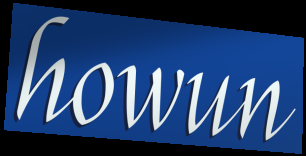
howun